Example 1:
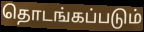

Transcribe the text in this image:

தொடங்கப்படும்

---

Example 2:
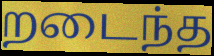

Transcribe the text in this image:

றடைந்த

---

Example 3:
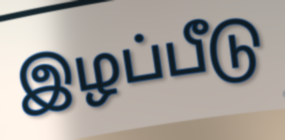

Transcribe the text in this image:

இழப்பீடு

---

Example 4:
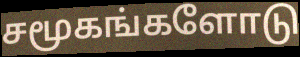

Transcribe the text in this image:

சமூகங்களோடு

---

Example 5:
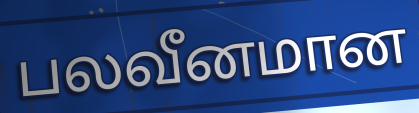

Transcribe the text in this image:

பலவீனமான